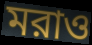
মরাও